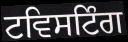
ਟਵਿਸਟਿੰਗ